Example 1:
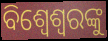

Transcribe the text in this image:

ବିଶ୍ୱେଶ୍ୱରଙ୍କୁ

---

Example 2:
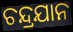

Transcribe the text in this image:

ଚନ୍ଦ୍ରଯାନ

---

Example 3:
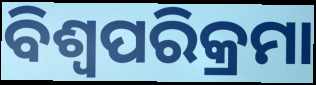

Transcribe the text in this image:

ବିଶ୍ୱପରିକ୍ରମା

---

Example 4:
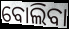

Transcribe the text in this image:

ବୋଲିବା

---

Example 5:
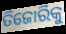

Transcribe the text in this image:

ତିଜୋରିକୁ